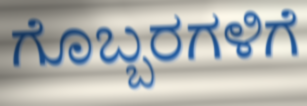
ಗೊಬ್ಬರಗಳಿಗೆ